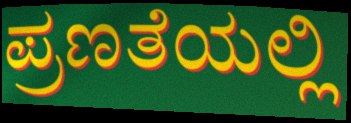
ಪ್ರಣತೆಯಲ್ಲಿ